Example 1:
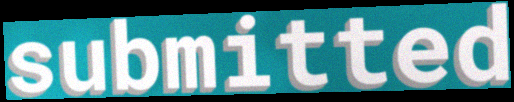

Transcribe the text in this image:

submitted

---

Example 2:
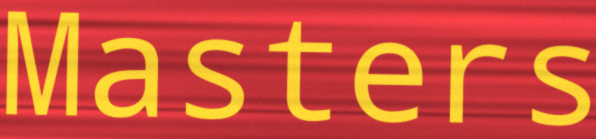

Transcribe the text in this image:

Masters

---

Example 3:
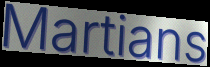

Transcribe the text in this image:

Martians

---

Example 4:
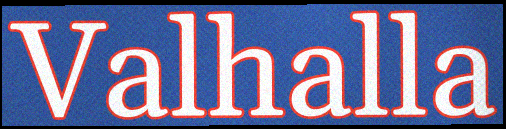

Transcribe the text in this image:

Valhalla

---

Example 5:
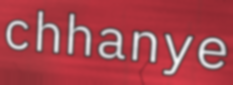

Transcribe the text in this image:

chhanye